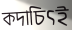
কদাচিৎই